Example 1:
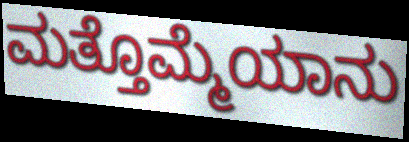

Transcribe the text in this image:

ಮತ್ತೊಮ್ಮೆಯಾನು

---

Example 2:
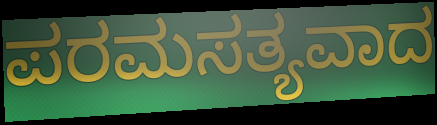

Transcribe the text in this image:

ಪರಮಸತ್ಯವಾದ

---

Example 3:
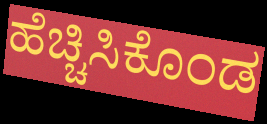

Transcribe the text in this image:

ಹೆಚ್ಚಿಸಿಕೊಂಡ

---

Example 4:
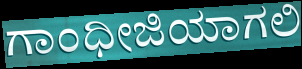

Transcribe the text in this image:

ಗಾಂಧೀಜಿಯಾಗಲಿ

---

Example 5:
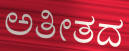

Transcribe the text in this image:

ಅತೀತದ